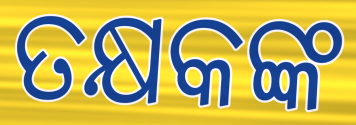
ତକ୍ଷକଙ୍କ